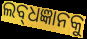
ଲବ୍‌ଧଜ୍ଞାନକୁ